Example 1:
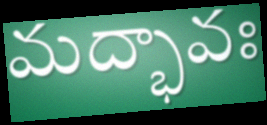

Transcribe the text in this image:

మద్భావః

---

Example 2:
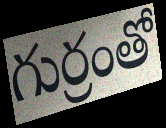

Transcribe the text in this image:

గుర్రంతో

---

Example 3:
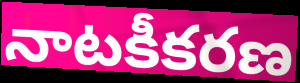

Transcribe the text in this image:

నాటకీకరణ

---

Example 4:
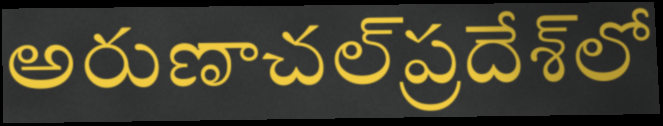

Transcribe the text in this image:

అరుణాచల్‌ప్రదేశ్‌లో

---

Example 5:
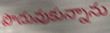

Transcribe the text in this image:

పొదువుకున్నాను